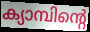
ക്യാമ്പിന്റെ